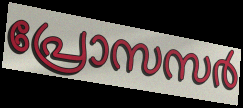
പ്രോസസർ